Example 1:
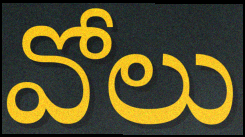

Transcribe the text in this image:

వోలు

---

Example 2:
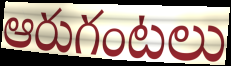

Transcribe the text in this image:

ఆరుగంటలు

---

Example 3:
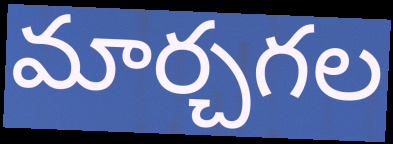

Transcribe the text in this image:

మార్చగల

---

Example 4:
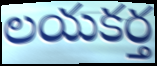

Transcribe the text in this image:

లయకర్త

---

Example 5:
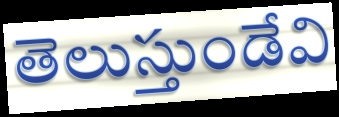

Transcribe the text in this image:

తెలుస్తుండేవి